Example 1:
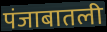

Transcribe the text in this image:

पंजाबातली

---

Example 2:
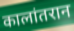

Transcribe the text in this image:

कालांतरान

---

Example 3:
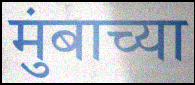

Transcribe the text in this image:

मुंबाच्या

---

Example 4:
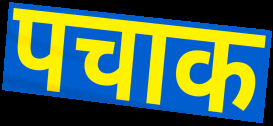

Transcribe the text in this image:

पचाक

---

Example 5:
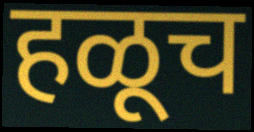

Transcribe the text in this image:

हळूच